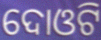
ଦୋଓଟି